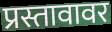
प्रस्तावावर